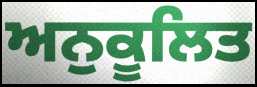
ਅਨੁਕੂਲਿਤ